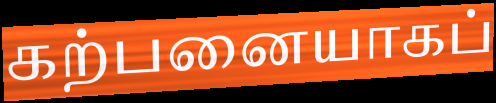
கற்பனையாகப்